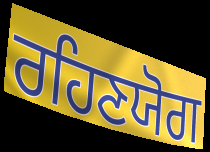
ਰਹਿਣਯੋਗ